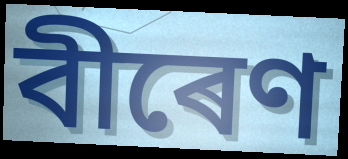
বীৰেণ